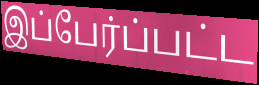
இப்பேர்ப்பட்ட